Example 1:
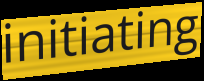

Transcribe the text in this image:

initiating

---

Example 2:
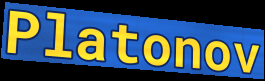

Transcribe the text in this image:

Platonov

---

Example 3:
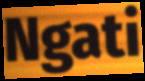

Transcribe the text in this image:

Ngati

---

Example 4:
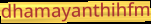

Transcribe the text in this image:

dhamayanthihfm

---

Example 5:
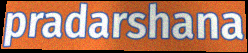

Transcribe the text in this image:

pradarshana